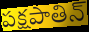
పక్షపాతిన్